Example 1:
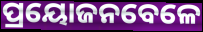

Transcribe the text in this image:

ପ୍ରୟୋଜନବେଳେ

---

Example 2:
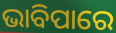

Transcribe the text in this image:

ଭାବିପାରେ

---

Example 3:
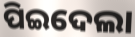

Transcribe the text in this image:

ପିଇଦେଲା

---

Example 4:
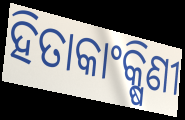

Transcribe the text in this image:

ହିତାକାଂକ୍ଷିଣୀ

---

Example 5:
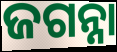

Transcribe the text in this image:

ଜଗନ୍ନା